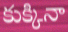
కుక్కినా